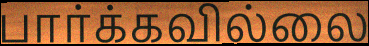
பார்க்கவில்லை